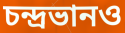
চন্দ্রভানও